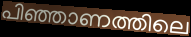
പിഞ്ഞാണത്തിലെ